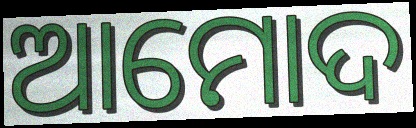
ଆମୋଦ